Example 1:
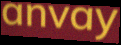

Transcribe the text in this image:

anvay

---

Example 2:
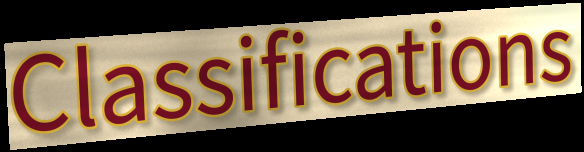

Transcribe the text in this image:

Classifications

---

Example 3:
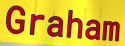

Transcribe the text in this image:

Graham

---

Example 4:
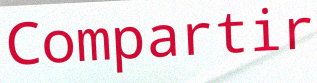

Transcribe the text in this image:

Compartir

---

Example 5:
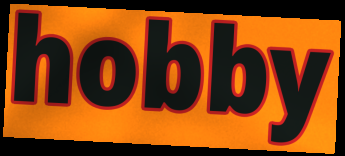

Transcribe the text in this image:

hobby